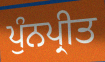
ਪੁੰਨਪ੍ਰੀਤ